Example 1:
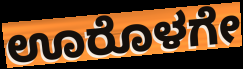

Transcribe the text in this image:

ಊರೊಳಗೇ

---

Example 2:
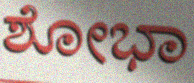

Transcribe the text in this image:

ಶೋಭಾ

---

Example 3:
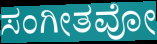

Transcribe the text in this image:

ಸಂಗೀತವೋ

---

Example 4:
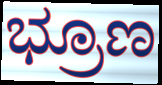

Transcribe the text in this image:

ಭ್ರೂಣ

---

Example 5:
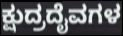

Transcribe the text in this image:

ಕ್ಷುದ್ರದೈವಗಳ